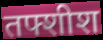
तफ्शीश